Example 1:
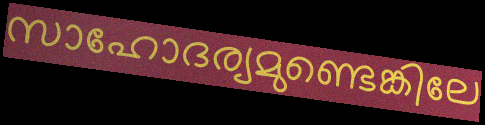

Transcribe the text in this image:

സാഹോദര്യമുണ്ടെങ്കിലേ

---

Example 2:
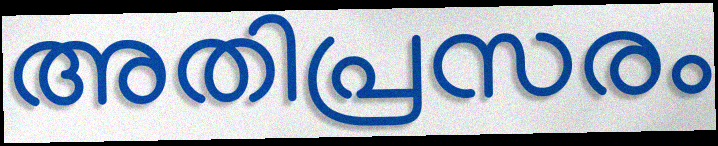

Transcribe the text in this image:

അതിപ്രസരം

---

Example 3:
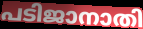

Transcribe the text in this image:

പടിജാനാതി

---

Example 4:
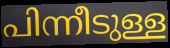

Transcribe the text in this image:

പിന്നീടുള്ള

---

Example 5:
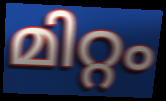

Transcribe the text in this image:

മിറ്റം